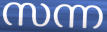
സന്ന